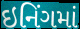
ઇનિંગમાં